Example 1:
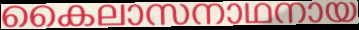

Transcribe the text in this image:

കൈലാസനാഥനായ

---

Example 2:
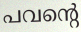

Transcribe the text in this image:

പവന്റെ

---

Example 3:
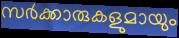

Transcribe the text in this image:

സർക്കാരുകളുമായും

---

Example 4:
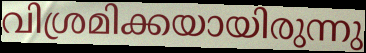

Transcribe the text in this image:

വിശ്രമിക്കയായിരുന്നു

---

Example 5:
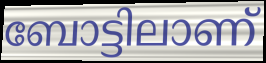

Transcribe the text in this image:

ബോട്ടിലാണ്